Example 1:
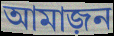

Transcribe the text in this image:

আমাজ়ন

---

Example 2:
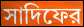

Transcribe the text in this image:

সাদিফের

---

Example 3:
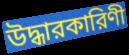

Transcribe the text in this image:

উদ্ধারকারিণী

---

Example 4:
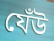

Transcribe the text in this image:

যেঁউ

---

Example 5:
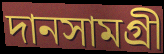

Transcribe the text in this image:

দানসামগ্রী